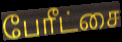
பேரீட்சை